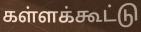
கள்ளக்கூட்டு